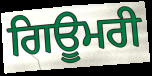
ਗਿਊਮਰੀ